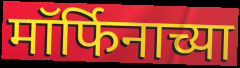
मॉर्फिनाच्या